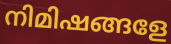
നിമിഷങ്ങളേ